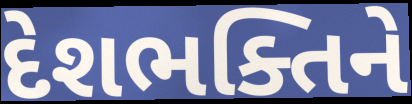
દેશભક્તિને